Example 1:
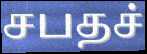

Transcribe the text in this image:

சபதச்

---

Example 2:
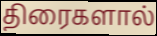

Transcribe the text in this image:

திரைகளால்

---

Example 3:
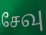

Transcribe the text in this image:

சேவு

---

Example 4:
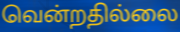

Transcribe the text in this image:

வென்றதில்லை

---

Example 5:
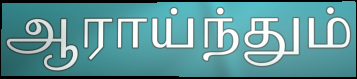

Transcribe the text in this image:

ஆராய்ந்தும்